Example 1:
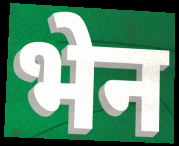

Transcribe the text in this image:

भेन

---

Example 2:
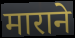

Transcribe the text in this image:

माराने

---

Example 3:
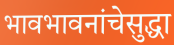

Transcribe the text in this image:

भावभावनांचेसुद्धा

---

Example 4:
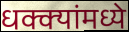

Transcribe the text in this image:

धक्क्यांमध्ये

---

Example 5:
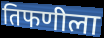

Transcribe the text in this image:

तिफणीला